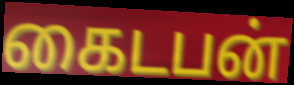
கைடபன்